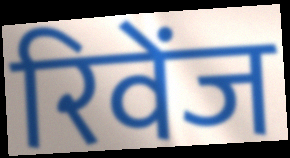
रिवेंज